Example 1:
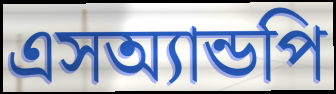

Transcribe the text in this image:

এসঅ্যান্ডপি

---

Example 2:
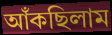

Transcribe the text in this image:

আঁকছিলাম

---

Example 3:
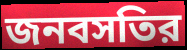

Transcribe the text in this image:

জনবসতির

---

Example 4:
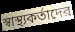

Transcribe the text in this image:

স্বাস্থ্যকর্তাদের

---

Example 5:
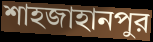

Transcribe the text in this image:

শাহজাহানপুর